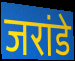
जरांडे